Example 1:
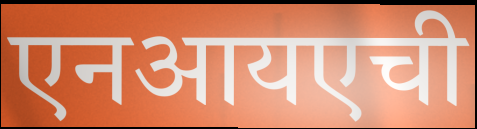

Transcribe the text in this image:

एनआयएची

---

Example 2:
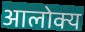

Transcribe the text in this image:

आलोक्य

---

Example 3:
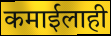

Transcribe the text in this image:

कमाईलाही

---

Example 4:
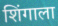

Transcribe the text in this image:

शिंगाला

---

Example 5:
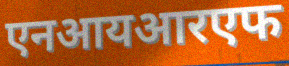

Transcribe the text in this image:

एनआयआरएफ